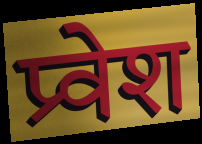
प्र्वेश